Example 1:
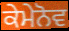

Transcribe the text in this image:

ਕੇਮੇਨੋਵ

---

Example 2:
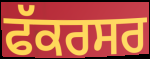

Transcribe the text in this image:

ਫੱਕਰਸਰ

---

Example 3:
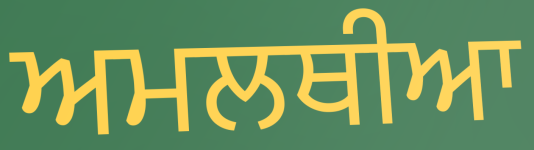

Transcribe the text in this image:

ਅਮਲਥੀਆ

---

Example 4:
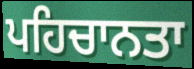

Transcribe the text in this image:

ਪਹਿਚਾਨਤਾ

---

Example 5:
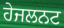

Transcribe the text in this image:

ਹੇਜਲਨਟ